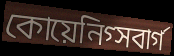
কোয়েনিগ্সবার্গ